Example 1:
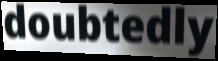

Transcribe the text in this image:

doubtedly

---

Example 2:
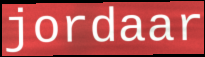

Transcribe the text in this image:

jordaar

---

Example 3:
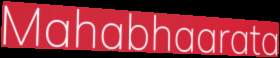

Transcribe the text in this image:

Mahabhaarata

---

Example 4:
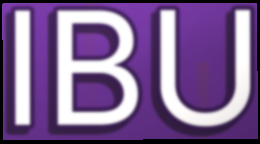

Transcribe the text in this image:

IBU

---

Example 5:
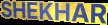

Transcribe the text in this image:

SHEKHAR